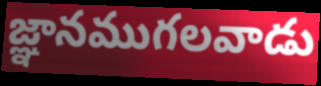
జ్ఞానముగలవాడు